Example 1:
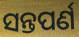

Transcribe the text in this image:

ସନ୍ତପର୍ଣ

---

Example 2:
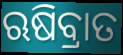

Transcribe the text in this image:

ଋଷିବ୍ରାତ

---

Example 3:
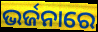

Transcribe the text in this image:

ଭର୍ଜନାରେ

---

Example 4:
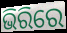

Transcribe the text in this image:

ଭିରିରେ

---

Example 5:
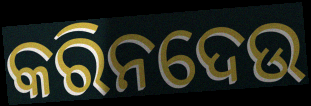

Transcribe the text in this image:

କରିନଦେଉ